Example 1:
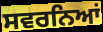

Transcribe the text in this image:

ਸਵਰਨਿਆਂ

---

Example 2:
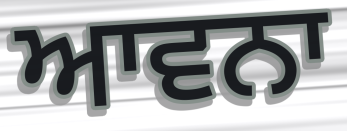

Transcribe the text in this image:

ਆਵਨਾ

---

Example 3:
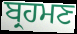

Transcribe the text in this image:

ਬ੍ਰਹਮਣ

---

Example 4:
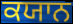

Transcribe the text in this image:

ਕਯਾਨ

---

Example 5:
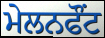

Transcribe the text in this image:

ਮੇਲਨਫੌਂਟ